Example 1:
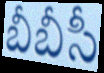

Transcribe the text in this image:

బీబీసీ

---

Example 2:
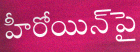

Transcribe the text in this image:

హీరోయిన్‌పై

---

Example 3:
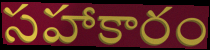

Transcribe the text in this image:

సహాకారం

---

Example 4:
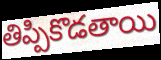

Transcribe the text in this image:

తిప్పికొడతాయి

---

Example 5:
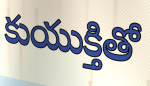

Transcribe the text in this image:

కుయుక్తితో